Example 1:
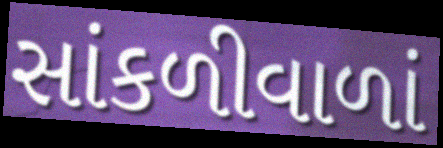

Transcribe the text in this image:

સાંકળીવાળાં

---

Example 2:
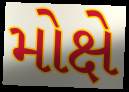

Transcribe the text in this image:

મોક્ષે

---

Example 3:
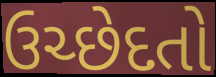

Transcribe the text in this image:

ઉચ્છેદતો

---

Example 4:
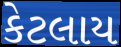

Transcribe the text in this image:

કેટલાય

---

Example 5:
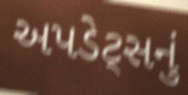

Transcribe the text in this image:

અપડેટ્સનું